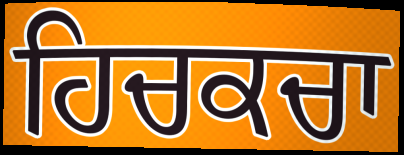
ਹਿਚਕਚਾ